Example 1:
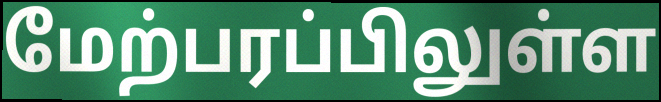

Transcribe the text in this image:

மேற்பரப்பிலுள்ள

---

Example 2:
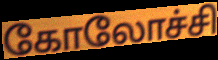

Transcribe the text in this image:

கோலோச்சி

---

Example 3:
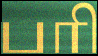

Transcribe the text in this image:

பரி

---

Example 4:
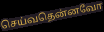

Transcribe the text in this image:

செய்வதென்னவோ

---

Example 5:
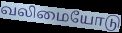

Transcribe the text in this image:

வலிமையோடு